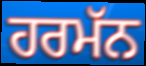
ਹਰਮੱਨ